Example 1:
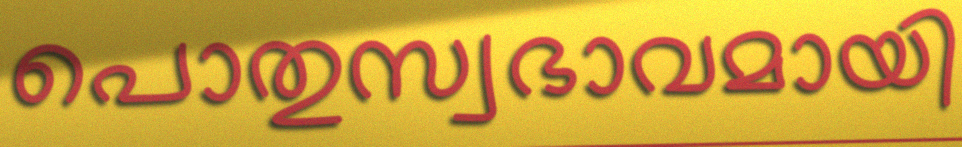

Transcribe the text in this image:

പൊതുസ്വഭാവമായി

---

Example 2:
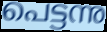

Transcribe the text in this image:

പെട്ടന്നു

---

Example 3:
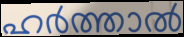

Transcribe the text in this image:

ഹർത്താൽ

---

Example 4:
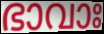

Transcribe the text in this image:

ഭാവാഃ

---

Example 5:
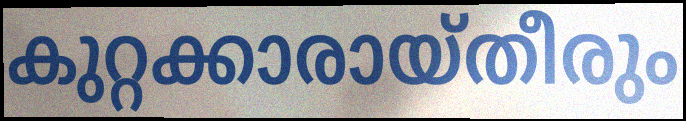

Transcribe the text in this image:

കുറ്റക്കാരായ്തീരും